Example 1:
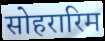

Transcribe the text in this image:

सोहरारिम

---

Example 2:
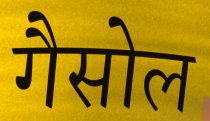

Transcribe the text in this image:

गैसोल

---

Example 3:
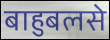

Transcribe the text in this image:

बाहुबलसे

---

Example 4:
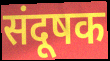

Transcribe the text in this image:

संदूषक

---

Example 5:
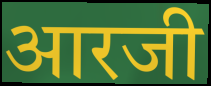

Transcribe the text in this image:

आरजी